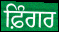
ਫ਼ਿੰਗਰ